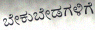
ಬೇಕುಬೇಡಗಳಿಗೆ